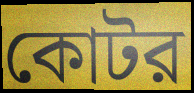
কোটর